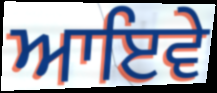
ਆਇਵੇ